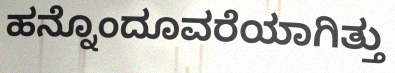
ಹನ್ನೊಂದೂವರೆಯಾಗಿತ್ತು